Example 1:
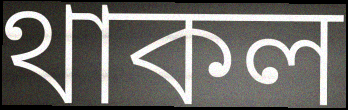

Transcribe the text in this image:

থাকল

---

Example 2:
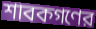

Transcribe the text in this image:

শাবকগণের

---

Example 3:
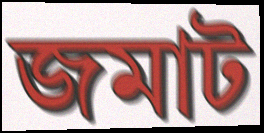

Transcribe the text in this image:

জমাট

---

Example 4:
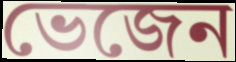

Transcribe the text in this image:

ভেজেন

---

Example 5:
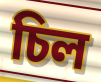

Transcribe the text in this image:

চিল